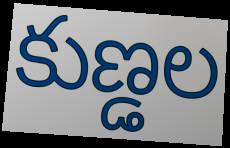
కుణ్డల